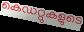
കെഡറ്റുകളുടെ